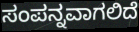
ಸಂಪನ್ನವಾಗಲಿದೆ